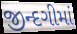
જીન્દગીમાં